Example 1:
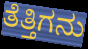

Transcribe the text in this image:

ತೆತ್ತಿಗನು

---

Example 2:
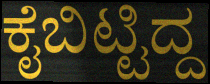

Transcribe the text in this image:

ಕೈಬಿಟ್ಟಿದ್ದ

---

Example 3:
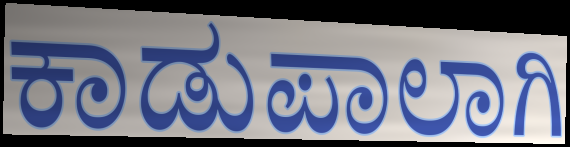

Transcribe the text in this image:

ಕಾಡುಪಾಲಾಗಿ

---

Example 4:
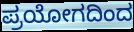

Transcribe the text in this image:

ಪ್ರಯೋಗದಿಂದ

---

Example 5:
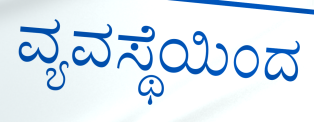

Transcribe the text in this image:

ವ್ಯವಸ್ಥೆಯಿಂದ